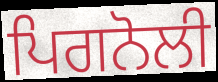
ਪਿਗਨੋਲੀ